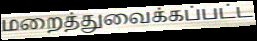
மறைத்துவைக்கப்பட்ட